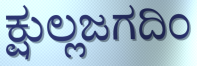
ಕ್ಷುಲ್ಲಜಗದಿಂ